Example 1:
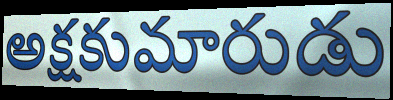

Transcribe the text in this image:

అక్షకుమారుడు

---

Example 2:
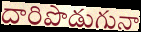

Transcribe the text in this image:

దారిపొడుగునా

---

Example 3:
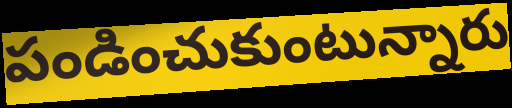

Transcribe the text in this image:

పండించుకుంటున్నారు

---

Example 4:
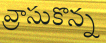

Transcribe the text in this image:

వ్రాసుకొన్న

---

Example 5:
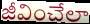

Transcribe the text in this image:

జీవించేలా